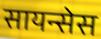
सायन्सेस